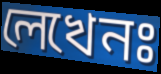
লেখেনঃ